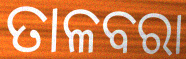
ତାଳବରା